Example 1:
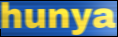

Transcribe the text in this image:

hunya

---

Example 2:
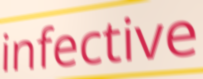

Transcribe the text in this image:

infective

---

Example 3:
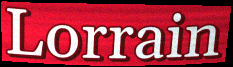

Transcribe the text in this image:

Lorrain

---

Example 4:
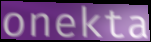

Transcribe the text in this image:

onekta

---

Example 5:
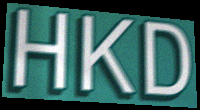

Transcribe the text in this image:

HKD